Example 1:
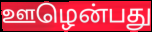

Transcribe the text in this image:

ஊழென்பது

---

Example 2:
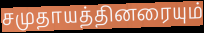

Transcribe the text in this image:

சமுதாயத்தினரையும்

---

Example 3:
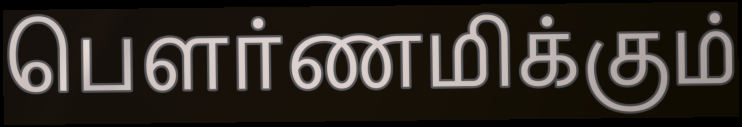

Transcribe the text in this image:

பௌர்ணமிக்கும்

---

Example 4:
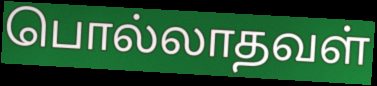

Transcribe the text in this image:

பொல்லாதவள்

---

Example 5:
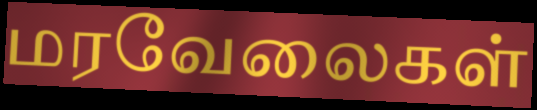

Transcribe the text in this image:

மரவேலைகள்